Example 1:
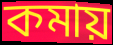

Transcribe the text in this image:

কমায়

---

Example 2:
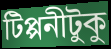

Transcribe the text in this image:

টিপ্পনীটুকু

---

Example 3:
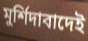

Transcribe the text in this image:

মুর্শিদাবাদেই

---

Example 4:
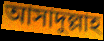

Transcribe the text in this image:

আসাদুল্লাহ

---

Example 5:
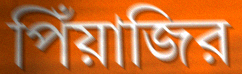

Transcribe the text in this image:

পিঁয়াজির